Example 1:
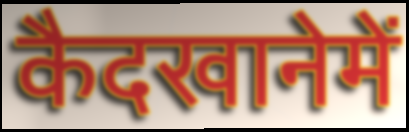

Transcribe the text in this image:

कैदखानेमें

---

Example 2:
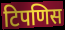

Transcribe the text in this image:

टिपणिस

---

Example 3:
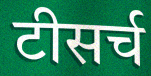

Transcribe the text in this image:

टीसर्च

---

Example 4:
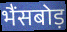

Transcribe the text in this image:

भैंसबोड़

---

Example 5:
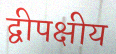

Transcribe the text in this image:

द्वीपक्षीय